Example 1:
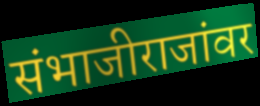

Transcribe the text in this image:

संभाजीराजांवर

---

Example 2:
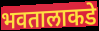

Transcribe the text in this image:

भवतालाकडे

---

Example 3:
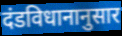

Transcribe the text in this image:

दंडविधानानुसार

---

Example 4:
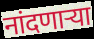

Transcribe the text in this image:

नांदणार्‍या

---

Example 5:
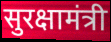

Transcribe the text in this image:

सुरक्षामंत्री